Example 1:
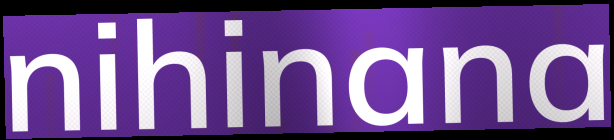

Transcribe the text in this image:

nihinana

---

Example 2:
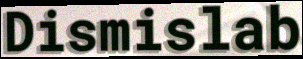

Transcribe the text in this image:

Dismislab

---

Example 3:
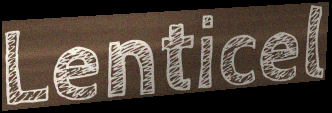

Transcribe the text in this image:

Lenticel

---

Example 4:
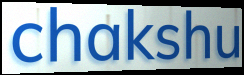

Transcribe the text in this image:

chakshu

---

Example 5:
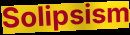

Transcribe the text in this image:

Solipsism